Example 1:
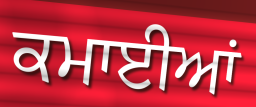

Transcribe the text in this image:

ਕਮਾਈਆਂ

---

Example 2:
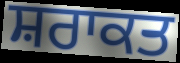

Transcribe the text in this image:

ਸ਼ਰਾਕਤ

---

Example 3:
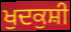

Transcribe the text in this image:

ਖੁਦਕੁਸ਼ੀ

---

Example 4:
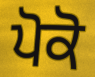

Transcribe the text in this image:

ਪੋਕੋ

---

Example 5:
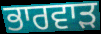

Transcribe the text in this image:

ਭਾਰਵਾੜ